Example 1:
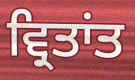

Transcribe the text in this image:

ਵ੍ਰਿਤਾਂਤ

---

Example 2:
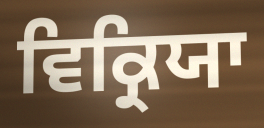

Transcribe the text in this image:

ਵਿਕ੍ਰਿਯਾ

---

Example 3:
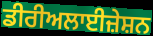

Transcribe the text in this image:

ਡੀਰੀਅਲਾਈਜ਼ੇਸ਼ਨ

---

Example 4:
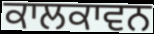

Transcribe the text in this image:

ਕਾਲਕਾਵਨ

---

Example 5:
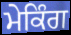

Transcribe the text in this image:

ਮੇਕਿੰਗ